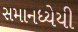
સમાનધ્યેયી